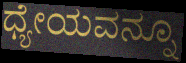
ಧ್ಯೇಯವನ್ನೂ